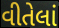
વીતેલાં